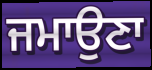
ਜਮਾਉਣਾ